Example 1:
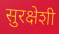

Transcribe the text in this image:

सुरक्षेशी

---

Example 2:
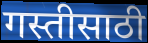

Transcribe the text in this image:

गस्तीसाठी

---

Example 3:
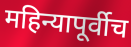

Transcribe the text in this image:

महिन्यापूर्वीच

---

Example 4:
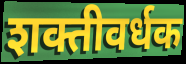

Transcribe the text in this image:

शक्तीवर्धक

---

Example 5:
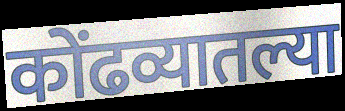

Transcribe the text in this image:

कोंढव्यातल्या